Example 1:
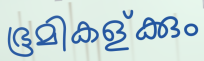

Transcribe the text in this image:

ഭൂമികള്ക്കും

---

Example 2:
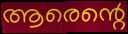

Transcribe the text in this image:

ആരെന്റെ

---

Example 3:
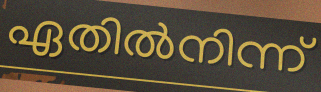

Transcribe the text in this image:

ഏതിൽനിന്ന്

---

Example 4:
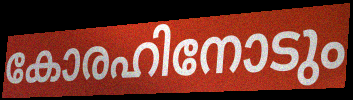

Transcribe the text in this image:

കോരഹിനോടും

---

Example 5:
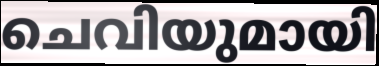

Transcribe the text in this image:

ചെവിയുമായി